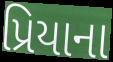
પ્રિયાના